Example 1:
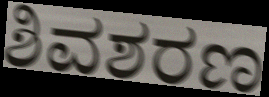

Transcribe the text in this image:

ಶಿವಶರಣ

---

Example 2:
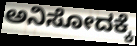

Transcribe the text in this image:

ಅನಿಸೋದಕ್ಕೆ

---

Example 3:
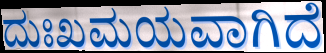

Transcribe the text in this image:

ದುಃಖಮಯವಾಗಿದೆ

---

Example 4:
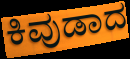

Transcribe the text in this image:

ಕಿವುಡಾದ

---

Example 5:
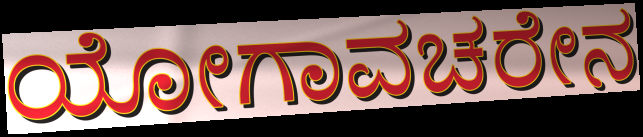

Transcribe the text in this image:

ಯೋಗಾವಚರೇನ